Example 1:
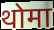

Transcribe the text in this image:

थोमा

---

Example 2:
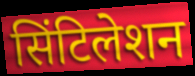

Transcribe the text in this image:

सिंटिलेशन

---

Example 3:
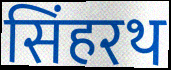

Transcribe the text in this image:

सिंहरथ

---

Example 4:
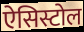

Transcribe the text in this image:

ऐसिस्टोल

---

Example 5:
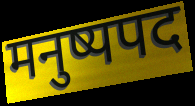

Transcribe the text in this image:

मनुष्यपद